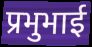
प्रभुभाई